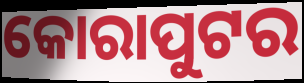
କୋରାପୁଟର